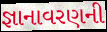
જ્ઞાનાવરણની